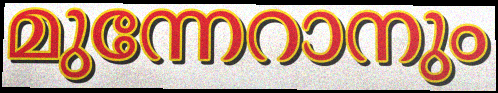
മുന്നേറാനും